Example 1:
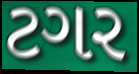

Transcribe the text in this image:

ટગર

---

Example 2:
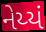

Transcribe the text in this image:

નેય્યં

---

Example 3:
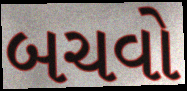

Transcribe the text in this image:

બચવો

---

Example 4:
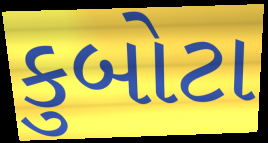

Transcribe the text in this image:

કુબોટા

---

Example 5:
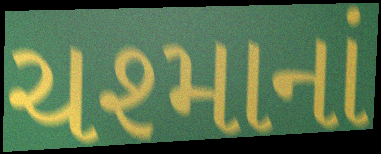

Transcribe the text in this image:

ચશ્માનાં